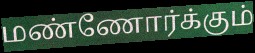
மண்ணோர்க்கும்